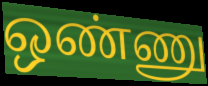
ஒண்ணு